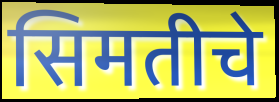
सिमतीचे